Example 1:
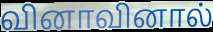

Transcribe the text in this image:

வினாவினால்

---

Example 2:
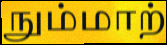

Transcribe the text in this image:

நும்மாற்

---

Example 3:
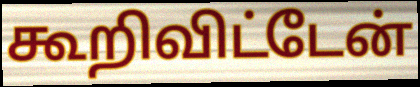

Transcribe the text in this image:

கூறிவிட்டேன்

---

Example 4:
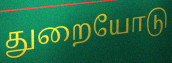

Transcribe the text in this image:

துறையோடு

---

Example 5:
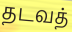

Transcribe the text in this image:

தடவத்